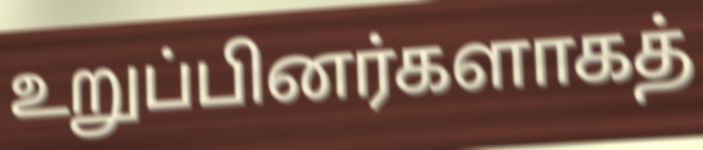
உறுப்பினர்களாகத்